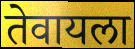
तेवायला